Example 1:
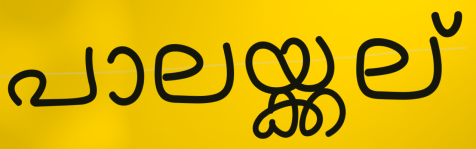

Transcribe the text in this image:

പാലയ്ക്കല്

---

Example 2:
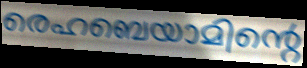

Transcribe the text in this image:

രെഹബെയാമിന്റെ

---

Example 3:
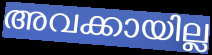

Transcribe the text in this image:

അവക്കായില്ല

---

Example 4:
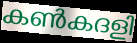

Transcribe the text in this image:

കൺകദളി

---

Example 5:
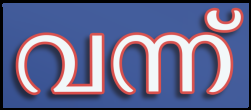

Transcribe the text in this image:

വന്ന്